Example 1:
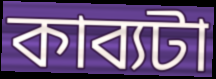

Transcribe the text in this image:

কাব্যটা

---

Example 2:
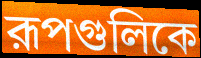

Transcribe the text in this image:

রূপগুলিকে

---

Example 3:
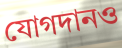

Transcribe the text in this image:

যোগদানও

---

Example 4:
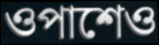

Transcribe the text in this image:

ওপাশেও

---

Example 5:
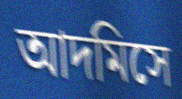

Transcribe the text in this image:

আদমিসে